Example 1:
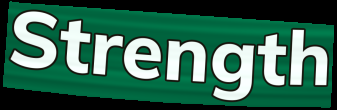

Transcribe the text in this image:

Strength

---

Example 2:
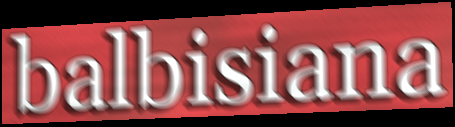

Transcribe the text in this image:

balbisiana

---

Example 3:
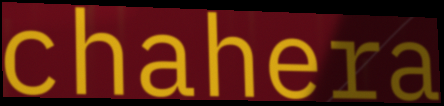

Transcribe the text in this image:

chahera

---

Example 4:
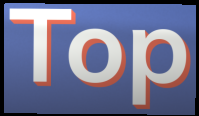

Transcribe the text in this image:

Top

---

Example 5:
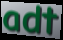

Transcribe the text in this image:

adt